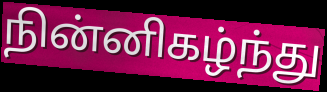
நின்னிகழ்ந்து